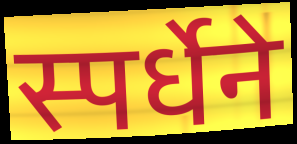
स्पर्धेने